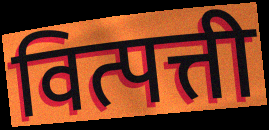
वित्पत्ती